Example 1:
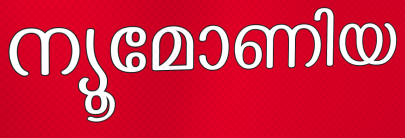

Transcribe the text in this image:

ന്യൂമോണിയ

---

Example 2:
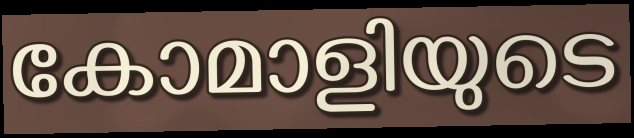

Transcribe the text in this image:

കോമാളിയുടെ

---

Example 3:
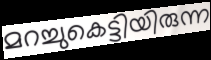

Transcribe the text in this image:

മറച്ചുകെട്ടിയിരുന്ന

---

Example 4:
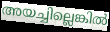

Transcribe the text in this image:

അയച്ചില്ലെങ്കിൽ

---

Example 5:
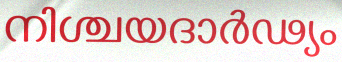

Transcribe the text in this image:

നിശ്ചയദാർഢ്യം